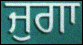
ਜੁਗਾ